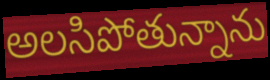
అలసిపోతున్నాను